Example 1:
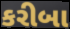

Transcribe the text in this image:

કરીબા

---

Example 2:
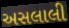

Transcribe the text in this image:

અસલાલી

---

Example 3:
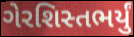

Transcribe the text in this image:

ગેરશિસ્તભર્યું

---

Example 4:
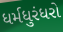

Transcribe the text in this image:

ધર્મધુરંધરો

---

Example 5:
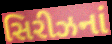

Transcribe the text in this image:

સિરીઝનાં